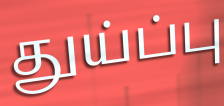
துய்ப்பு